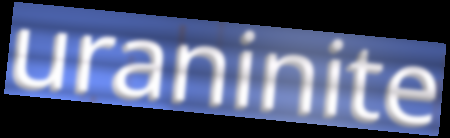
uraninite